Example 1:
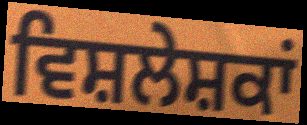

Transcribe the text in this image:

ਵਿਸ਼ਲੇਸ਼ਕਾਂ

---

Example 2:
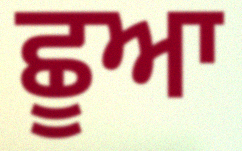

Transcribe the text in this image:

ਛੂਆ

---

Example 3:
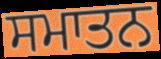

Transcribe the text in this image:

ਸਮਾਤਨ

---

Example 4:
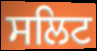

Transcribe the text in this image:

ਸਲਿਟ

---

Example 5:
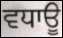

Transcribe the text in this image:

ਵਧਾਊ